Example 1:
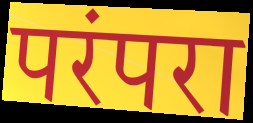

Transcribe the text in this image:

परंपरा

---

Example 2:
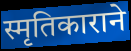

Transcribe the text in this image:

स्मृतिकाराने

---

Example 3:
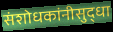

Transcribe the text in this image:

संशोधकांनीसुद्धा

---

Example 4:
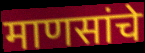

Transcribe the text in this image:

माणसांचे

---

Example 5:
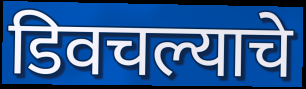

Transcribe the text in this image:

डिवचल्याचे